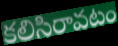
కలిసిరావటం